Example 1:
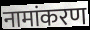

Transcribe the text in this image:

नामांकरण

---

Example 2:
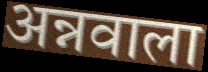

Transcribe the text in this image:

अन्नवाला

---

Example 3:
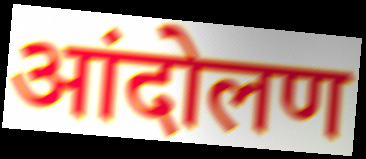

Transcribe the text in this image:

आंदोलण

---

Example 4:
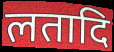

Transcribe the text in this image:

लतादि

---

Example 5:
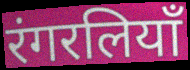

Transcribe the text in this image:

रंगरलियाँ